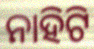
ନାହିଟି